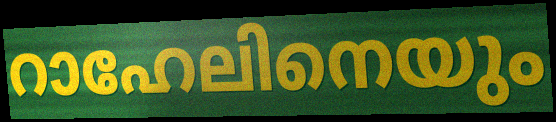
റാഹേലിനെയും